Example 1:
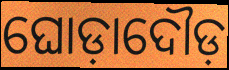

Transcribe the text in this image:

ଘୋଡ଼ାଦୌଡ଼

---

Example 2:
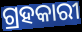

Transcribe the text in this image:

ଗ୍ରହକାରୀ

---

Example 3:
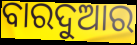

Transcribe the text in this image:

ବାରଦୁଆର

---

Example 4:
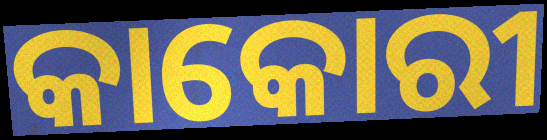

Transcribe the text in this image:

କାକୋରୀ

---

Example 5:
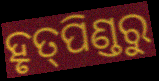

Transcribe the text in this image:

ହୃତ୍‌ପିଣ୍ଡରୁ